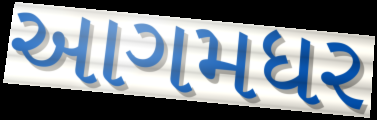
આગમધર